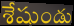
శేషుండు